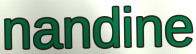
nandine